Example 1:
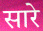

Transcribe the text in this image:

सारे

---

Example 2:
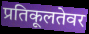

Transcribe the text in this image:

प्रतिकूलतेवर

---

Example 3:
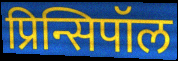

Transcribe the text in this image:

प्रिन्सिपॉल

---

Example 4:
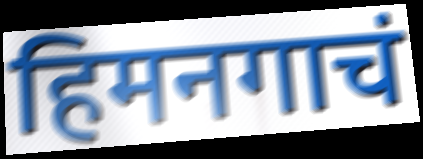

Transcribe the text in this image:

हिमनगाचं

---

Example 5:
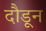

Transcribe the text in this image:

दौडून